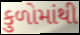
કુળોમાંથી